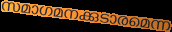
സമാഗമനക്കുടാരമെന്ന